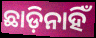
ଛାଡ଼ିନାହିଁ